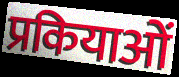
प्रकियाओं